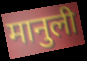
मानुली